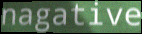
nagative